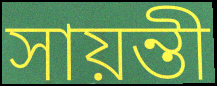
সায়ন্তী